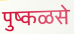
पुष्कळसे